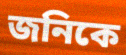
জনিকে